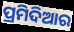
ପ୍ରମିଦିଆର